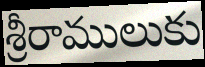
శ్రీరాములుకు